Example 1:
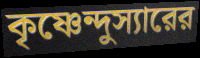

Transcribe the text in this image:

কৃষ্ণেন্দুস্যারের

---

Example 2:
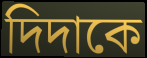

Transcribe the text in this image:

দিদাকে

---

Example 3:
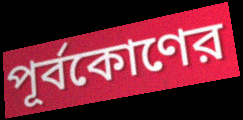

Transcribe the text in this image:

পূর্বকোণের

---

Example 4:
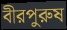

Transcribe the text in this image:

বীরপুরুষ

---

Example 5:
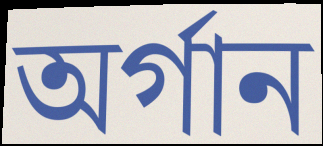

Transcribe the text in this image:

অর্গান